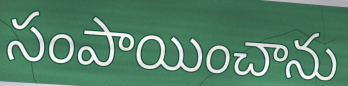
సంపాయించాను